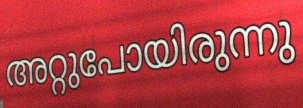
അറ്റുപോയിരുന്നു